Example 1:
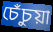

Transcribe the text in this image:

চেঁচুয়া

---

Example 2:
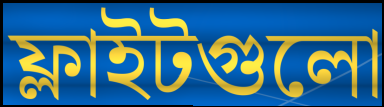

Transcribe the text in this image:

ফ্লাইটগুলো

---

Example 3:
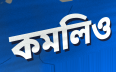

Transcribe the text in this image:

কমলিও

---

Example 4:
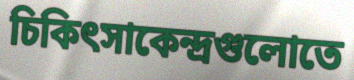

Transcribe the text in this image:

চিকিৎসাকেন্দ্রগুলোতে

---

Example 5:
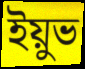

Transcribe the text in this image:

ইয়ুভ